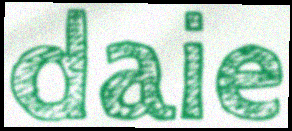
daie